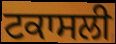
ਟਕਾਸਲੀ